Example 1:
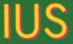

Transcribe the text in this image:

IUS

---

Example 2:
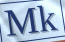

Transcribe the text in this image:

Mk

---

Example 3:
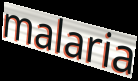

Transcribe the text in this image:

malaria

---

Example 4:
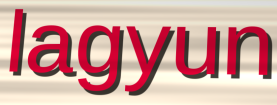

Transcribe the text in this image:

lagyun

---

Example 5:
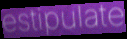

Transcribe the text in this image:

estipulate